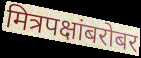
मित्रपक्षांबरोबर